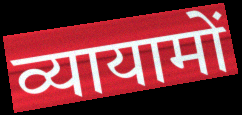
व्यायामों